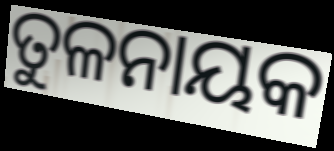
ତୁଳନାୟକ